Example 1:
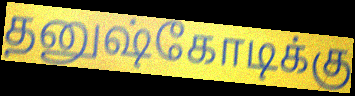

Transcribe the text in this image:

தனுஷ்கோடிக்கு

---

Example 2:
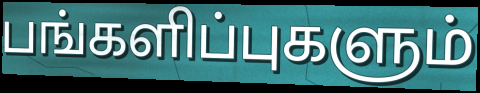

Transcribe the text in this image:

பங்களிப்புகளும்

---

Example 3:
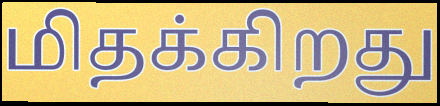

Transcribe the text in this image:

மிதக்கிறது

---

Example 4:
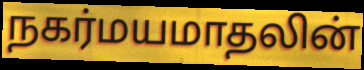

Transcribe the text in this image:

நகர்மயமாதலின்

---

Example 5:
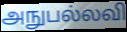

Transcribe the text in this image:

அநுபல்லவி